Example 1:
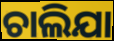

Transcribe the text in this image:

ଚାଲିଯା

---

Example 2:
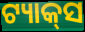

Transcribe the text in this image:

ଟ୍ୟାକ୍‌ସ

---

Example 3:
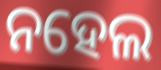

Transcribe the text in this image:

ନହେଲ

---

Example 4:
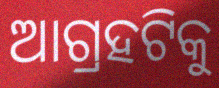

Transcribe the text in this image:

ଆଗ୍ରହଟିକୁ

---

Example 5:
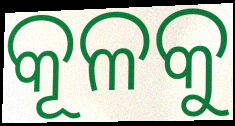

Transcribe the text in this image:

କୂଳକୁ